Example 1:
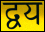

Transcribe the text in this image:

द्वय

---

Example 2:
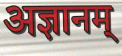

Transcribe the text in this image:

अज्ञानम्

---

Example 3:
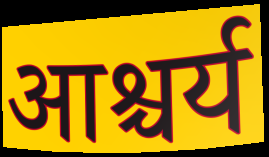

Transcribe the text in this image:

आश्चर्य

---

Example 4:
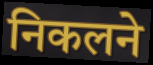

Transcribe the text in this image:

निकलने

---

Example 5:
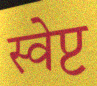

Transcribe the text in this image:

स्वेप्ट